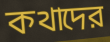
কথাদের